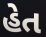
હેત